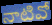
నాటివో